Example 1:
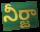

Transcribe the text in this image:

నీర్జా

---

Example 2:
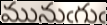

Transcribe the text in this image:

మునుఁగుఁ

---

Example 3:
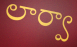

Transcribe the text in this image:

లార్వా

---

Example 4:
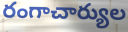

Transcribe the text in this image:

రంగాచార్యుల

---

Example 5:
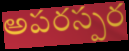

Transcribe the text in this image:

అపరస్పర